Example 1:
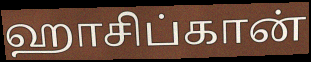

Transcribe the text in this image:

ஹாசிப்கான்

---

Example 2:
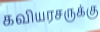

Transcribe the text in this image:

கவியரசருக்கு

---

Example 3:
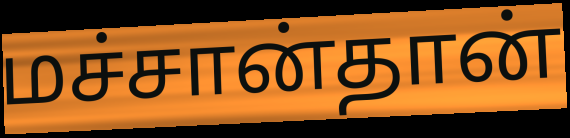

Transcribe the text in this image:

மச்சான்தான்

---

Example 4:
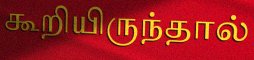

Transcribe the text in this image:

கூறியிருந்தால்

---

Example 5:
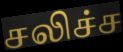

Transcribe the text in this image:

சலிச்ச